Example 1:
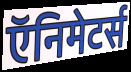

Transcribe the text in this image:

ऍनिमेटर्स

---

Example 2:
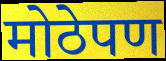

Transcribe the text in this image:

मोठेपण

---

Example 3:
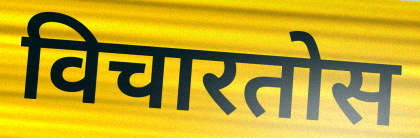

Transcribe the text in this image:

विचारतोस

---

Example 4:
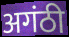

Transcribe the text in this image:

अगंठी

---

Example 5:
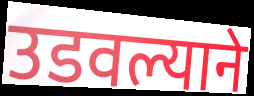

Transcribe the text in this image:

उडवल्याने